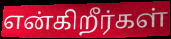
என்கிறீர்கள்